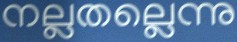
നല്ലതല്ലെന്നു